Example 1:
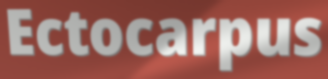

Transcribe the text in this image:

Ectocarpus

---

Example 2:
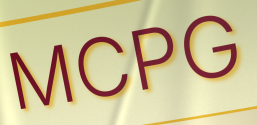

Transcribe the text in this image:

MCPG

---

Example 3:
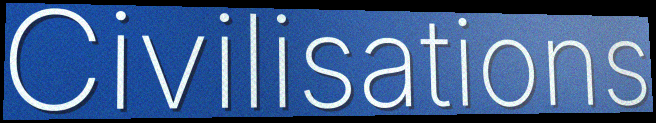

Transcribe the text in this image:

Civilisations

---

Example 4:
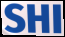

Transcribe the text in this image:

SHI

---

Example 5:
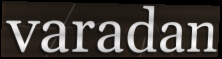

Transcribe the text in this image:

varadan